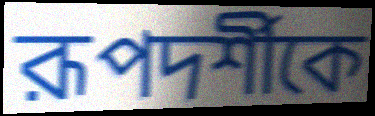
রূপদর্শীকে